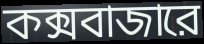
কক্সবাজারে